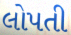
લોપતી